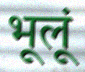
भूलूं